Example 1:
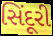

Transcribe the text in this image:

સિંદૂરી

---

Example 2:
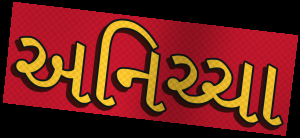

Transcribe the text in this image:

અનિચ્ચા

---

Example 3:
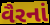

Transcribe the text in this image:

વૈરનાં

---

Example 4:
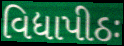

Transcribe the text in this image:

વિદ્યાપીઠઃ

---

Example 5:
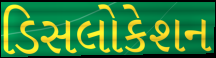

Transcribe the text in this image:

ડિસલોકેશન